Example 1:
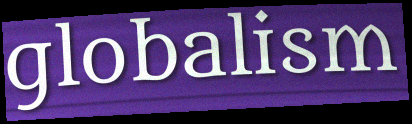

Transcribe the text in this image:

globalism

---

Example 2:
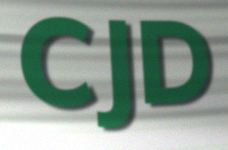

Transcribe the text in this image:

CJD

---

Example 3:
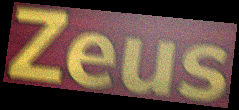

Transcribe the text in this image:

Zeus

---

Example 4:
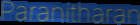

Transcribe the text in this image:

Paranitharan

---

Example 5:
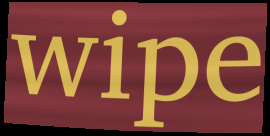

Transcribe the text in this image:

wipe